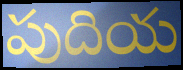
పుదియ